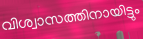
വിശ്വാസത്തിനായിട്ടും